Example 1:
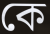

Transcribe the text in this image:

কে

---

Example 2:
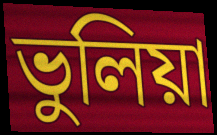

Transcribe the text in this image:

ভুলিয়া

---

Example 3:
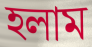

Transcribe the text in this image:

হলাম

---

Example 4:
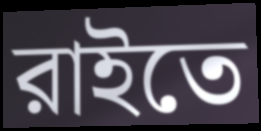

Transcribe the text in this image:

রাইতে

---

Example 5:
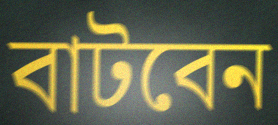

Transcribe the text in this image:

বাটবেন